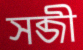
সব্জী